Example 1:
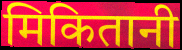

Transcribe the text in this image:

मिकितानी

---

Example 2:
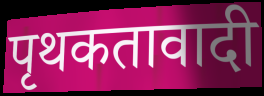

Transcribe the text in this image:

पृथकतावादी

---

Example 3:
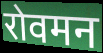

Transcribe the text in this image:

रोवमन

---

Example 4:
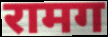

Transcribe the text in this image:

रामग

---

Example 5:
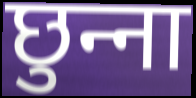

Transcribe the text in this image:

छुन्ना